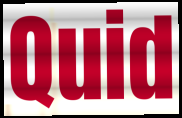
Quid